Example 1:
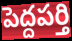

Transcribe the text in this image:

పెద్దపర్తి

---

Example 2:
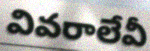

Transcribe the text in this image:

వివరాలేవీ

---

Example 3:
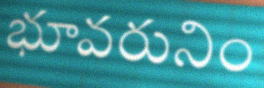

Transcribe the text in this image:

భూవరునిం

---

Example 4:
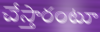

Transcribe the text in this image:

చేస్తారంటూ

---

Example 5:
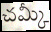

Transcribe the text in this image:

చమ్కీ